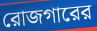
রোজগারের